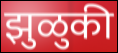
झुळुकी